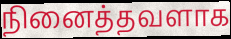
நினைத்தவளாக